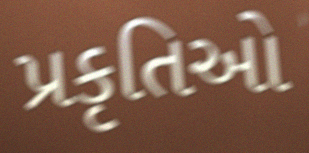
પ્રકૃતિઓ